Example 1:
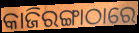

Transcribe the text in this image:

କାଜିରଙ୍ଗାଠାରେ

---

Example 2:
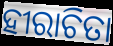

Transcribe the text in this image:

ହୀରାଚିତା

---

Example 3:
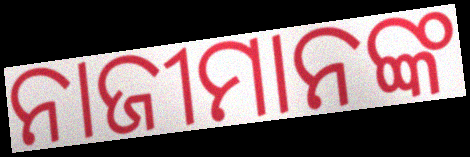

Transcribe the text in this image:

ନାଜୀମାନଙ୍କ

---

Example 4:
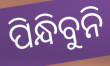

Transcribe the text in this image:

ପିନ୍ଧିବୁନି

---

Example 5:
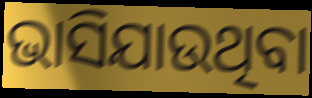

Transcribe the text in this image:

ଭାସିଯାଉଥିବା